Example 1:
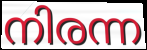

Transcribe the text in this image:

നിരന്ന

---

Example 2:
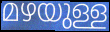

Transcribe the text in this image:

മഴയുള്ള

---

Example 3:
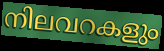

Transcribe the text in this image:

നിലവറകളും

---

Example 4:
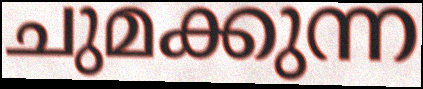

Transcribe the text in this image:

ചുമക്കുന്ന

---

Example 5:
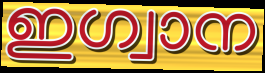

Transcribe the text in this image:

ഇഗ്വാന